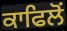
ਕਾਫਿਲੋਂ